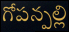
గోపన్పల్లి